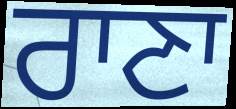
ਰਾਣਾ